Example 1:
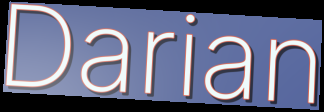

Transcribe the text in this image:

Darian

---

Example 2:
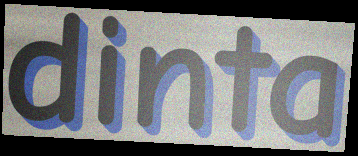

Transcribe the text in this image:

dinta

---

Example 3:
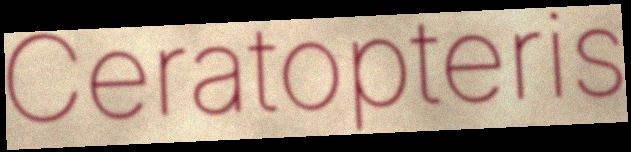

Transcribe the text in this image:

Ceratopteris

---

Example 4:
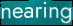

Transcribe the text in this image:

nearing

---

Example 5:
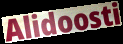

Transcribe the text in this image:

Alidoosti